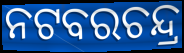
ନଟବରଚନ୍ଦ୍ର